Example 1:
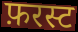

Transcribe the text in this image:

फ़रस्ट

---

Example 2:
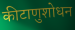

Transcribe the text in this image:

कीटाणुशोधन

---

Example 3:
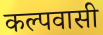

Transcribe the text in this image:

कल्पवासी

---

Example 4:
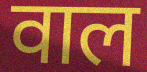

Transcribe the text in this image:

वाल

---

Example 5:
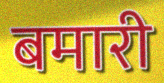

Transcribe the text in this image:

बमारी